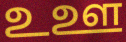
உஊ